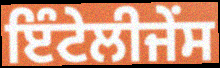
ਇੰਟੇਲੀਜੇੰਸ